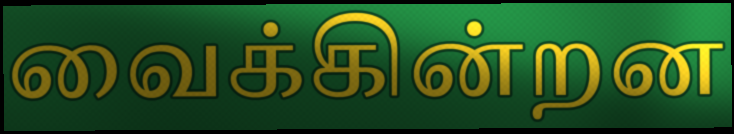
வைக்கின்றன